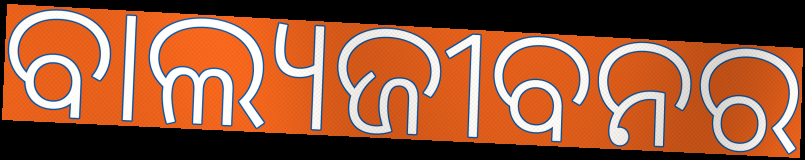
ବାଲ୍ୟଜୀବନର